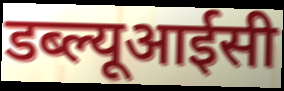
डब्ल्यूआईसी